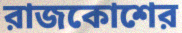
রাজকোশের